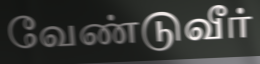
வேண்டுவீர்